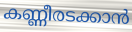
കണ്ണീരടക്കാൻ